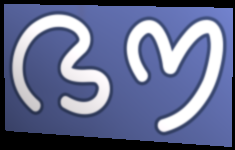
ഭൗ